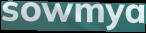
sowmya